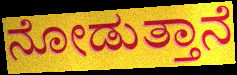
ನೋಡುತ್ತಾನೆ